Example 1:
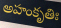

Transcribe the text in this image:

అహంకృతిః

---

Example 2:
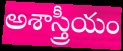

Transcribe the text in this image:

అశాస్త్రీయం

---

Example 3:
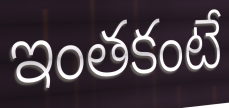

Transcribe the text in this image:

ఇంతకంటే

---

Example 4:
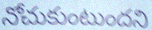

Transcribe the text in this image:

నోచుకుంటుందని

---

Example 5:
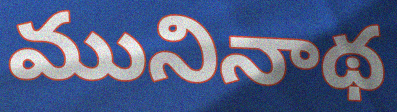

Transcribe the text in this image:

మునినాథ